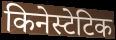
किनेस्टेटिक